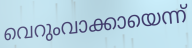
വെറുംവാക്കായെന്ന്